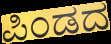
ಪಿಂಡದ